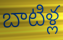
బాటిళ్ల